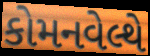
કોમનવેલ્થે